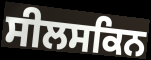
ਸੀਲਸਕਿਨ